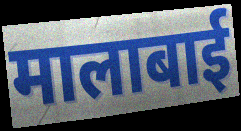
मालाबाई